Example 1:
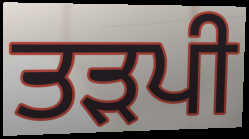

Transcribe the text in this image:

ਤੜਪੀ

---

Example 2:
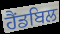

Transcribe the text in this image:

ਹੈਂਡਬਿਲ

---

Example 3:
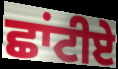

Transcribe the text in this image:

ਛਾਂਟੀਏ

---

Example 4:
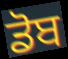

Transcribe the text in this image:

ਡੋਬ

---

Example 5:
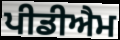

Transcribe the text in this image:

ਪੀਡੀਐਮ